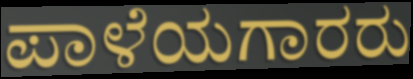
ಪಾಳೆಯಗಾರರು